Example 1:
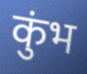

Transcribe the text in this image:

कुंभ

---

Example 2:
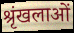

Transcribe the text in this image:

श्रृंखलाओं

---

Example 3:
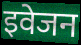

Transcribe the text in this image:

इवेजन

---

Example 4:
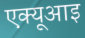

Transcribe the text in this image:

एक्यूआइ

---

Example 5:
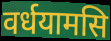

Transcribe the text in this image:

वर्धयामसि